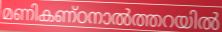
മണികണ്ഠനാൽത്തറയിൽ